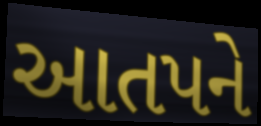
આતપને